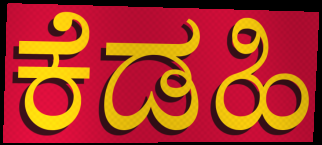
ಕೆಡಹಿ